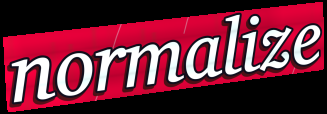
normalize